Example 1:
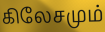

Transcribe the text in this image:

கிலேசமும்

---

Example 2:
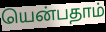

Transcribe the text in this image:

யென்பதாம்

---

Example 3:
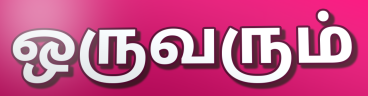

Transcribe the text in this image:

ஒருவரும்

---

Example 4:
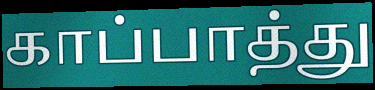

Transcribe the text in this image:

காப்பாத்து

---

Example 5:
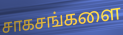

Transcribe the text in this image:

சாகசங்களை